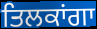
ਤਿਲਕਾਂਗਾ